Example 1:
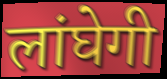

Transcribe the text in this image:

लांघेगी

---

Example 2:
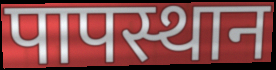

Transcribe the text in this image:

पापस्थान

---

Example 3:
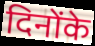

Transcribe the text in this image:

दिनोंके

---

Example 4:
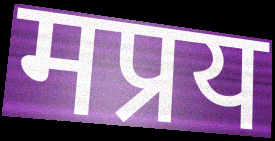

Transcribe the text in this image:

मप्रय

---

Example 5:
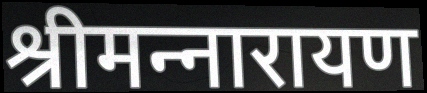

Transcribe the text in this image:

श्रीमन्नारायण